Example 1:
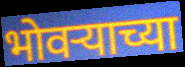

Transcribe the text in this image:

भोवऱ्याच्या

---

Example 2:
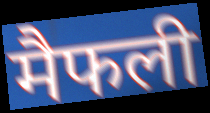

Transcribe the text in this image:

मैफली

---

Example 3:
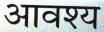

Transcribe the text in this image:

आवश्य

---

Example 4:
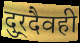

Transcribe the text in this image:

दुर्दैवही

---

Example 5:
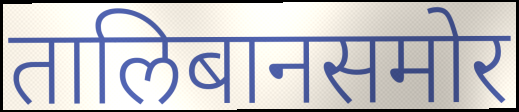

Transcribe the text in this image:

तालिबानसमोर